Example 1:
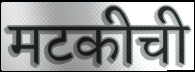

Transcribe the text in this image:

मटकीची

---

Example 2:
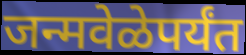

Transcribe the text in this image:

जन्मवेळेपर्यंत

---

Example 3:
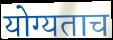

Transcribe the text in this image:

योग्यताच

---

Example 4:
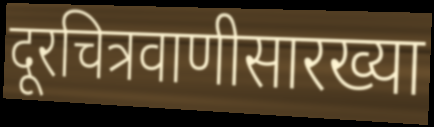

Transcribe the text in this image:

दूरचित्रवाणीसारख्या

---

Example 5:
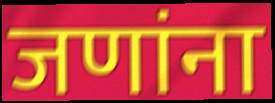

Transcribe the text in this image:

जणांना